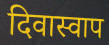
दिवास्वाप